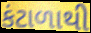
કંટાળાથી